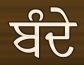
ਬੰਦੇ